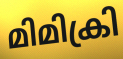
മിമിക്രി